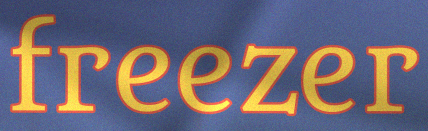
freezer